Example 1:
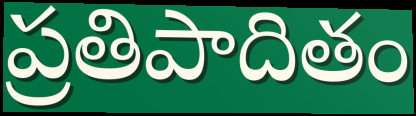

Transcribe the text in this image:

ప్రతిపాదితం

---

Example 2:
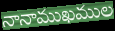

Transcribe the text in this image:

నానాముఖముల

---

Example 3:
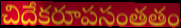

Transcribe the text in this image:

చిదేకరూపసంతతం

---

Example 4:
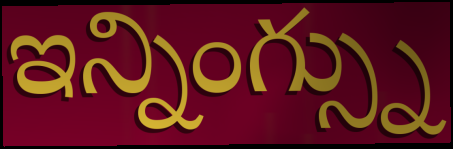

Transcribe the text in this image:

ఇన్నింగ్స్ను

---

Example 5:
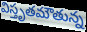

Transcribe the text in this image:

విస్తృతమౌతున్న